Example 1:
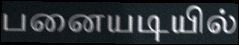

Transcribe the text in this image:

பனையடியில்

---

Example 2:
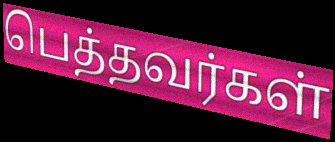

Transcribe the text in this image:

பெத்தவர்கள்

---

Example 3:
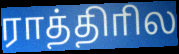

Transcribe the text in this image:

ராத்திரில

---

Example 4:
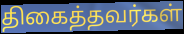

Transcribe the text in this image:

திகைத்தவர்கள்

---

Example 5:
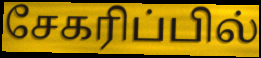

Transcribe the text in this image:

சேகரிப்பில்